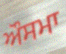
ਔਸਮਾ